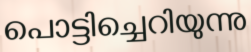
പൊട്ടിച്ചെറിയുന്നു